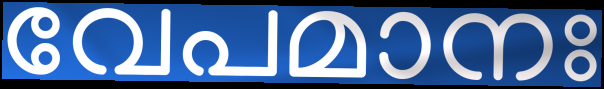
വേപമാനഃ